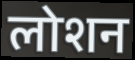
लोशन